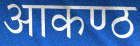
आकण्ठ